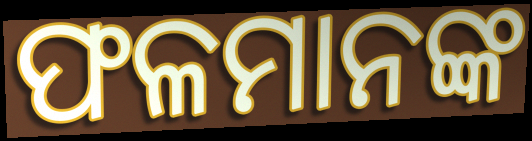
ଫଳମାନଙ୍କ